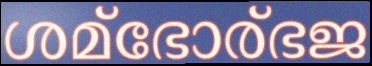
ശമ്ഭോര്ഭജ